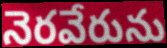
నెరవేరును